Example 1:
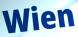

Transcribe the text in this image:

Wien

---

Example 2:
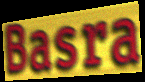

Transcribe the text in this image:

Basra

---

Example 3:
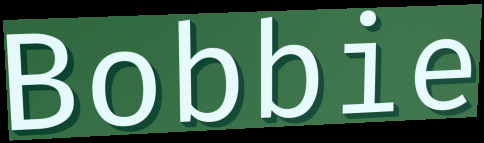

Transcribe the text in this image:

Bobbie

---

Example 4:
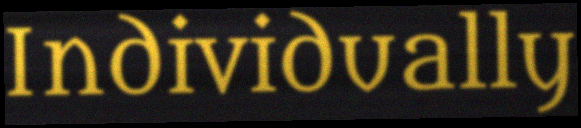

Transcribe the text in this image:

Individually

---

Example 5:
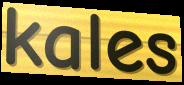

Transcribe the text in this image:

kales